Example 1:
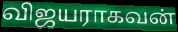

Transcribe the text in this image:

விஜயராகவன்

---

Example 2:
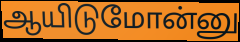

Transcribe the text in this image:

ஆயிடுமோன்னு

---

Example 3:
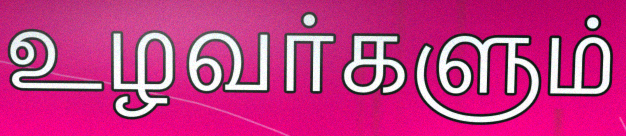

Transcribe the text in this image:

உழவர்களும்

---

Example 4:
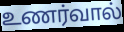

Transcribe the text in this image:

உணர்வால்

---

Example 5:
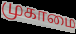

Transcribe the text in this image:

முகாமை